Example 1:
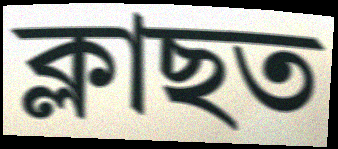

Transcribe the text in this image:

ক্লাছত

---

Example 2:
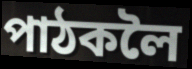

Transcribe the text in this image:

পাঠকলৈ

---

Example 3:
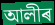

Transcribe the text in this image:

আলীৰ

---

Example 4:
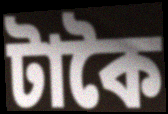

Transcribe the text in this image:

টাকৈ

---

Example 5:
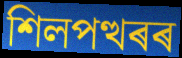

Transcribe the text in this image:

শিলপত্থৰৰ